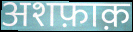
अशफ़ाक़